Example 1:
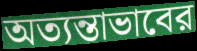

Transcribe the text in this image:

অত্যন্তাভাবের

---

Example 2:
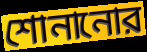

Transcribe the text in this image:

শোনানোর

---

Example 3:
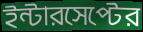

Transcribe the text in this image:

ইন্টারসেপ্টের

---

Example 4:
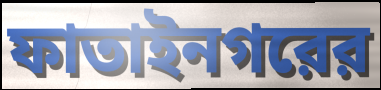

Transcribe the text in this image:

ফাতাইনগরের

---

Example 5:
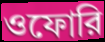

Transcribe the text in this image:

ওফোরি